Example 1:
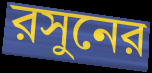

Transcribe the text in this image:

রসুনের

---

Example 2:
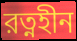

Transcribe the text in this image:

রত্নহীন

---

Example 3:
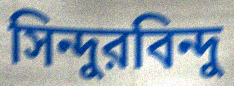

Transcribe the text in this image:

সিন্দুরবিন্দু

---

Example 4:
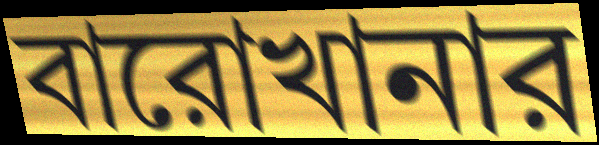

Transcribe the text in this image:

বারোখানার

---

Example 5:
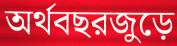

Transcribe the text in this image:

অর্থবছরজুড়ে